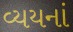
વ્યયનાં